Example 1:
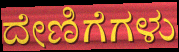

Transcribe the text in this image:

ದೇಣಿಗೆಗಳು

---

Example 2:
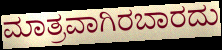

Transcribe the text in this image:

ಮಾತ್ರವಾಗಿರಬಾರದು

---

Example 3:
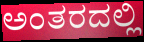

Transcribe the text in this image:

ಅಂತರದಲ್ಲಿ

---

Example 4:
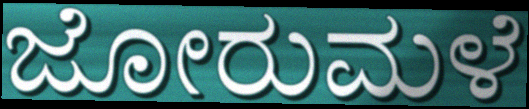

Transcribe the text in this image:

ಜೋರುಮಳೆ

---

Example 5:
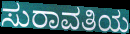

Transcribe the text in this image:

ಸುರಾವತಿಯ